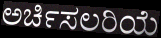
ಅರ್ಚಿಸಲರಿಯೆ